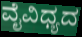
ವೈವಿಧ್ಯದ